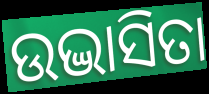
ଉଦ୍ଭାସିତା